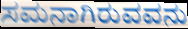
ಸಮನಾಗಿರುವವನು